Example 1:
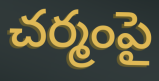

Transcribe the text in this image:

చర్మంపై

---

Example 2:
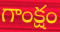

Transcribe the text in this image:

గాంక్షం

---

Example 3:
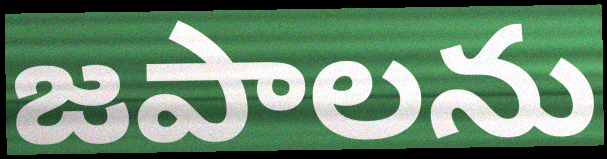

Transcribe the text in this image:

జపాలను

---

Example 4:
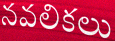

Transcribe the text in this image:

నవలికలు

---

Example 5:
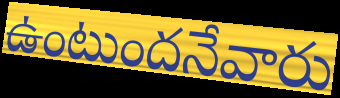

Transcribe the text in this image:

ఉంటుందనేవారు